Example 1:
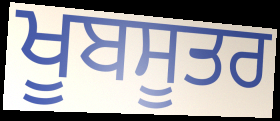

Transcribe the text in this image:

ਖੂਬਸੂਤਰ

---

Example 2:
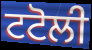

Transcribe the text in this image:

ਟਟੋਲੀ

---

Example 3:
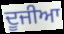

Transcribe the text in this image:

ਦੂਜੀਆ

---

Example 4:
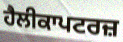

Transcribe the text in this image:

ਹੈਲੀਕਾਪਟਰਜ਼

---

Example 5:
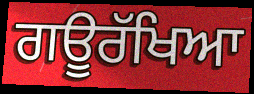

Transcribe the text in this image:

ਗਊਰੱਖਿਆ